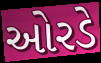
ઓરડે